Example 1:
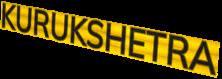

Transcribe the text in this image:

KURUKSHETRA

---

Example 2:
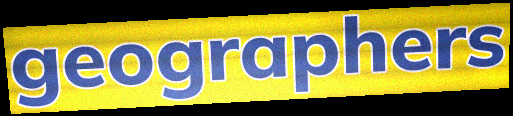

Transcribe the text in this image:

geographers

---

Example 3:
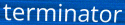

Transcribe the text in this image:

terminator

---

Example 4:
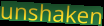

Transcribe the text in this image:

unshaken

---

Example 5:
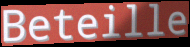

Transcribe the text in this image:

Beteille